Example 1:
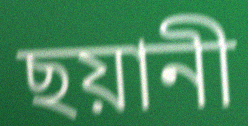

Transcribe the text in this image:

ছয়ানী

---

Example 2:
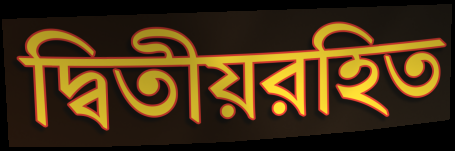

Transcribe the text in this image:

দ্বিতীয়রহিত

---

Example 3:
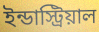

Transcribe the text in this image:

ইন্ডাস্ট্রিয়াল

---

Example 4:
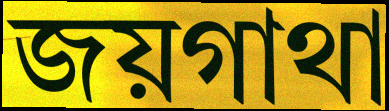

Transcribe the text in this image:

জয়গাথা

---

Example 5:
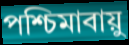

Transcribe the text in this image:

পশ্চিমাবায়ু